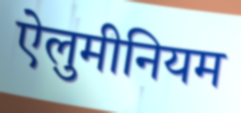
ऐलुमीनियम